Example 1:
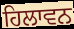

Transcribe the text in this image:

ਹਿਲਾਵਨ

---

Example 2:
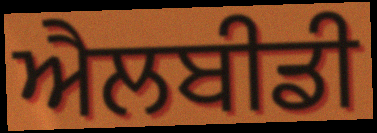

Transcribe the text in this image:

ਐਲਬੀਡੀ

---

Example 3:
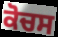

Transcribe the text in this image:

ਕੋਚਸ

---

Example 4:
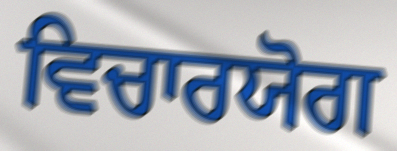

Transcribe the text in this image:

ਵਿਚਾਰਯੋਗ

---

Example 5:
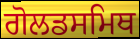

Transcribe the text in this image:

ਗੋਲਡਸਮਿਥ